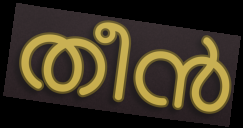
തീൻ